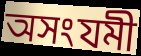
অসংযমী